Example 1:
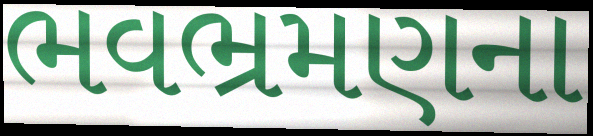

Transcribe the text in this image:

ભવભ્રમણના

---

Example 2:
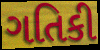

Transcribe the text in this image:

ગતિકી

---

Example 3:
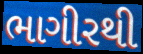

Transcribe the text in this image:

ભાગીરથી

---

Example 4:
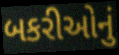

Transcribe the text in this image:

બકરીઓનું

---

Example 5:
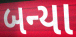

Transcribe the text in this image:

બન્યા